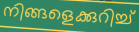
നിങ്ങളെക്കുറിച്ച്